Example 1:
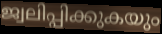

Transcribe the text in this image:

ജ്വലിപ്പിക്കുകയും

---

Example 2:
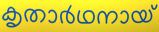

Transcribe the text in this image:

കൃതാർഥനായ്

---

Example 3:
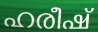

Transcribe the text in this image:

ഹരീഷ്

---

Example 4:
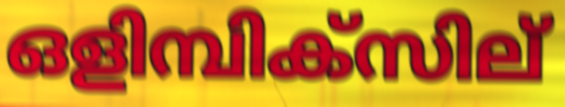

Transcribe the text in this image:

ഒളിമ്പിക്സില്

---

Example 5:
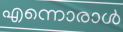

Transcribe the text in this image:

എന്നൊരാൾ